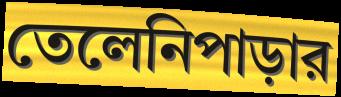
তেলেনিপাড়ার